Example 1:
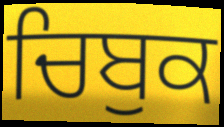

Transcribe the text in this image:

ਚਿਬੁਕ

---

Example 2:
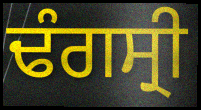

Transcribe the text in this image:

ਢੰਗਸ੍ਰੀ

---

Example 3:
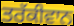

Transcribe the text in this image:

ਤਰੱਕੀਵਾਨ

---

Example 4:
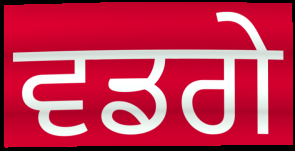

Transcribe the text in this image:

ਵਡਗੇ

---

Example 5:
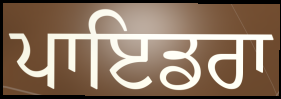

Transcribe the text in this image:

ਪਾਇਡਰਾ